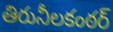
తిరునీలకంఠర్